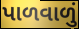
પાળવાળું